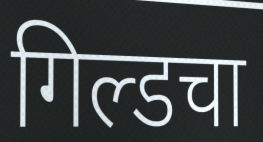
गिल्डचा